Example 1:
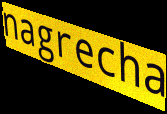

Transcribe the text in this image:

nagrecha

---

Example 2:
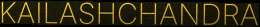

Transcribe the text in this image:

KAILASHCHANDRA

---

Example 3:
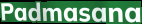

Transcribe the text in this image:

Padmasana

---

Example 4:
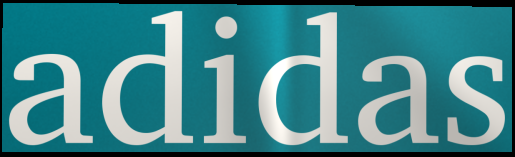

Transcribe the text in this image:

adidas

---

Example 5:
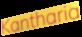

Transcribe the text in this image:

Kantharia